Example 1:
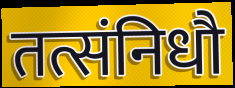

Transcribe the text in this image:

तत्संनिधौ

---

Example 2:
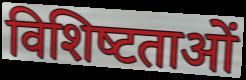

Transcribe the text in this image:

विशिष्‍टताओं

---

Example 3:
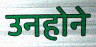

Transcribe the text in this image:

उनहोने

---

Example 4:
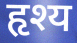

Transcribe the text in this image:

हृश्य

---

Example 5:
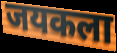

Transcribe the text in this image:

जयकला